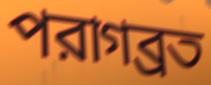
পরাগব্রত